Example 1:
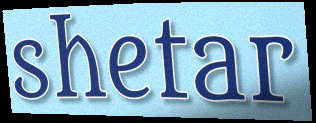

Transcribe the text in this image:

shetar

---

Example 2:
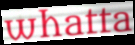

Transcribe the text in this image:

whatta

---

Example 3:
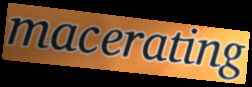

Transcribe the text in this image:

macerating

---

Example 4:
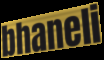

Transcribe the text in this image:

bhaneli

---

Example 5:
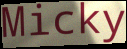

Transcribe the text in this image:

Micky